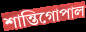
শান্তিগোপাল